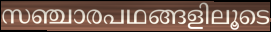
സഞ്ചാരപഥങ്ങളിലൂടെ